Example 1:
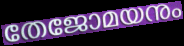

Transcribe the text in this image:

തേജോമയനും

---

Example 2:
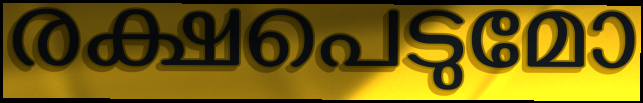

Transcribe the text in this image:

രക്ഷപെടുമോ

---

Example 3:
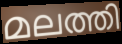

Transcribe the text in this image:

മലത്തി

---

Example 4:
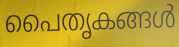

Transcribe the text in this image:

പൈതൃകങ്ങൾ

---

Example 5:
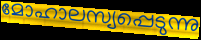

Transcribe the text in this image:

മോഹാലസ്യപ്പെടുന്നു